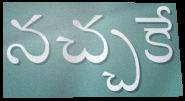
నచ్చకే